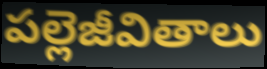
పల్లెజీవితాలు